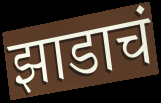
झाडाचं